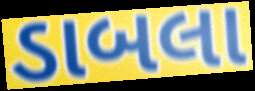
ડાબલા